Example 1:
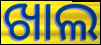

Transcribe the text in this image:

ଖାଲ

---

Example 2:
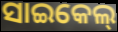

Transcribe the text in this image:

ସାଇକେଲ୍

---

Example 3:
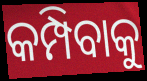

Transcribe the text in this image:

କମ୍ପିବାକୁ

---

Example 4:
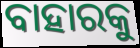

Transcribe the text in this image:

ବାହାରକୁ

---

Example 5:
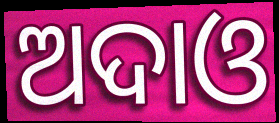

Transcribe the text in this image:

ଅଦାଓ